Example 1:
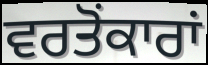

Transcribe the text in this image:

ਵਰਤੋਂਕਾਰਾਂ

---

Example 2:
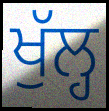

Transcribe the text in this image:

ਖੁੱਲ੍ਹ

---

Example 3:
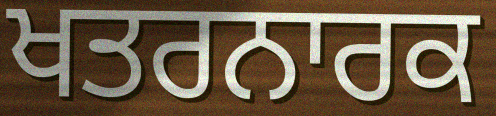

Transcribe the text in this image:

ਖਤਰਨਾਰਕ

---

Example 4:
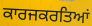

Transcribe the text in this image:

ਕਾਰਜਕਰਤਿਆਂ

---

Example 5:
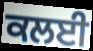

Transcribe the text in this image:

ਕਲਈ